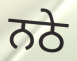
ਨਠੇ